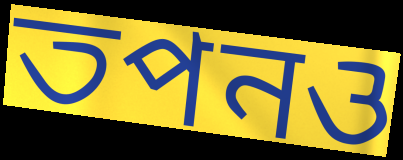
তপনও